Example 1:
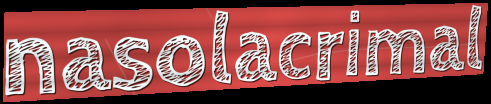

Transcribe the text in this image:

nasolacrimal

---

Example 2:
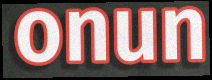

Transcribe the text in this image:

onun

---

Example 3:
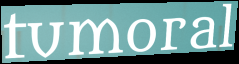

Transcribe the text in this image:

tumoral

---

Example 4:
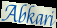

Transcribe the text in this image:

Abkari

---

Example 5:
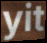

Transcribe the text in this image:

yit